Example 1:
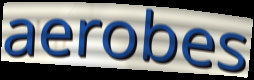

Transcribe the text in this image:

aerobes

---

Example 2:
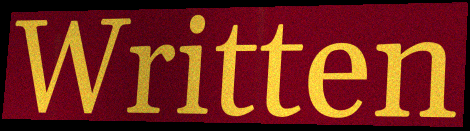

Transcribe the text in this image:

Written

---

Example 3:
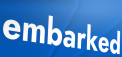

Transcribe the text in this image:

embarked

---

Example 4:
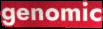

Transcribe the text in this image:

genomic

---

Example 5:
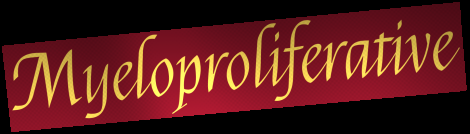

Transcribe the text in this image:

Myeloproliferative